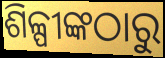
ଶିଳ୍ପୀଙ୍କଠାରୁ